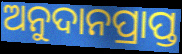
ଅନୁଦାନପ୍ରାପ୍ତ